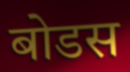
बोडस